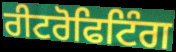
ਰੀਟਰੋਫਿਟਿੰਗ